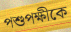
পশুপক্ষীকে